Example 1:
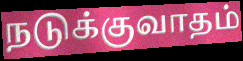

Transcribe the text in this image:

நடுக்குவாதம்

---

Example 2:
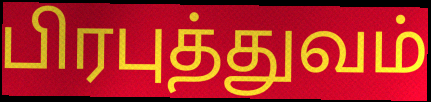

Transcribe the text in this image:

பிரபுத்துவம்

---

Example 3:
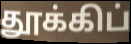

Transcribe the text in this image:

தூக்கிப்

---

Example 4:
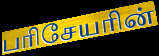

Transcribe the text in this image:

பரிசேயரின்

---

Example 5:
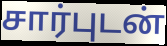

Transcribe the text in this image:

சார்புடன்